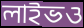
লাইভও